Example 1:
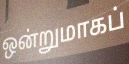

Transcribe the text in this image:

ஒன்றுமாகப்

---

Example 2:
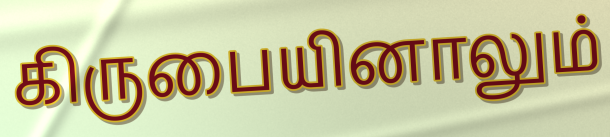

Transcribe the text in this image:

கிருபையினாலும்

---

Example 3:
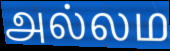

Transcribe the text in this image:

அல்லம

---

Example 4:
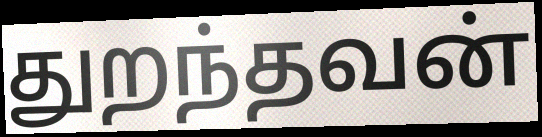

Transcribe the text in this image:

துறந்தவன்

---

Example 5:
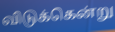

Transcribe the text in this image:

விடுக்கென்று